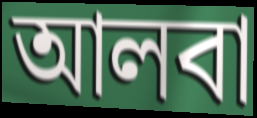
আলবা